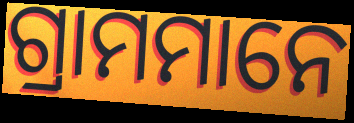
ଗ୍ରାମମାନେ